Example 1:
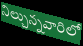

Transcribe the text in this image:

నిల్చున్నవారిలో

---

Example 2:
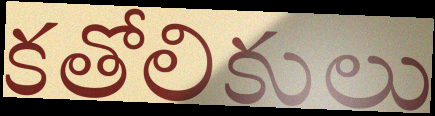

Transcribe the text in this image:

కతోలికులు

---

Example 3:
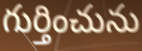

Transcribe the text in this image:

గుర్తించును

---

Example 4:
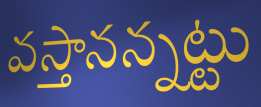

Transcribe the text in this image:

వస్తానన్నట్టు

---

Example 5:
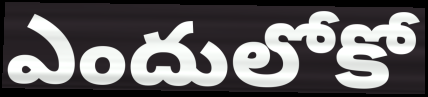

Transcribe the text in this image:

ఎందులోకో